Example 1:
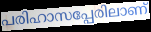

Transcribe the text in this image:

പരിഹാസപ്പേരിലാണ്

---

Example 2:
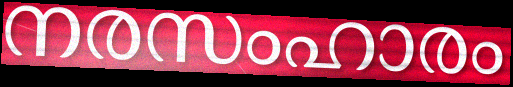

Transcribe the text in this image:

നരസംഹാരം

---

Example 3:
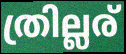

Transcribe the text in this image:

ത്രില്ലര്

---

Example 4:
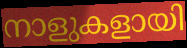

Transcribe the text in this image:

നാളുകളായി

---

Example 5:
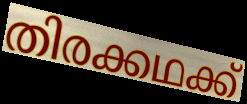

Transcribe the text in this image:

തിരക്കഥക്ക്